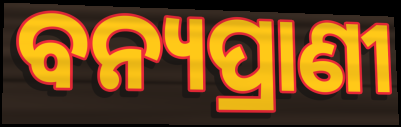
ବନ୍ୟପ୍ରାଣୀ